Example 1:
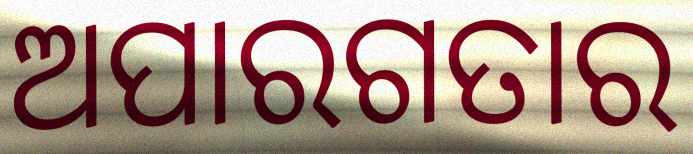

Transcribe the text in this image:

ଅପାରଗତାର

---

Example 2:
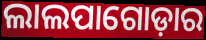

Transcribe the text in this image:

ଲାଲପାଗୋଡ଼ାର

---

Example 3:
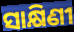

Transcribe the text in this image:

ସାକ୍ଷିଣୀ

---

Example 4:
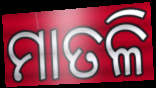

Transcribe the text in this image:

ମାତଳି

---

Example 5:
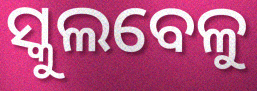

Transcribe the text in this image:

ସ୍କୁଲବେଳୁ